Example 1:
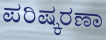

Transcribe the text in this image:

ಪರಿಷ್ಕರಣಾ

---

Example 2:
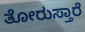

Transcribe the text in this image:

ತೋರುಸ್ತಾರೆ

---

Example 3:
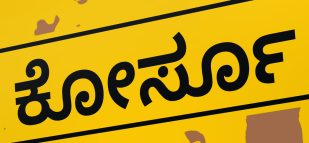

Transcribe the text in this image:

ಕೋರ್ಸೂ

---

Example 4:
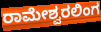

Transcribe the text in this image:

ರಾಮೇಶ್ವರಲಿಂಗ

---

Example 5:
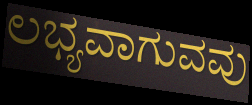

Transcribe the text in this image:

ಲಭ್ಯವಾಗುವವು